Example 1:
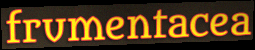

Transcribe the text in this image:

frumentacea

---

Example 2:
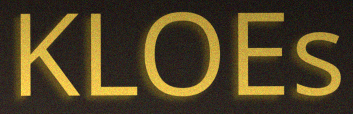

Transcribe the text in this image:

KLOEs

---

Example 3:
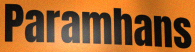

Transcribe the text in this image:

Paramhans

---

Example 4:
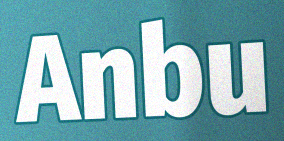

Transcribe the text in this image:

Anbu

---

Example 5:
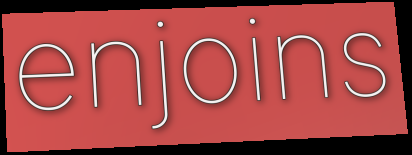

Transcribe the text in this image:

enjoins